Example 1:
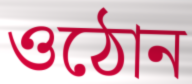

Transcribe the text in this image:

ওঠোন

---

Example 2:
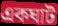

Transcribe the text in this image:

একঘাট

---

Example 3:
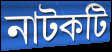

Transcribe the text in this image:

নাটকটি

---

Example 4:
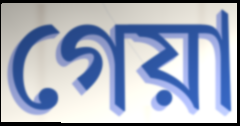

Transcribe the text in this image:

গেয়া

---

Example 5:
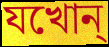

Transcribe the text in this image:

যখোন্